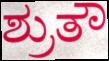
ಶ್ರುತೌ